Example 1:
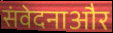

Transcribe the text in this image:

संवेदनाऔर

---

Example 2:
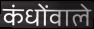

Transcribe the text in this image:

कंधोंवाले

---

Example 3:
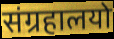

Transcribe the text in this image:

संग्रहालयो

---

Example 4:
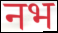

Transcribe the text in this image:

नभ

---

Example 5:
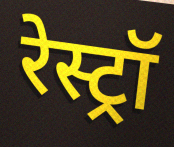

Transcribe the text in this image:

रेस्ट्रॉ